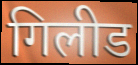
गिलीड